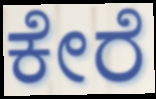
ಕೇರೆ